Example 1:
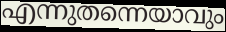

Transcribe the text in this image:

എന്നുതന്നെയാവും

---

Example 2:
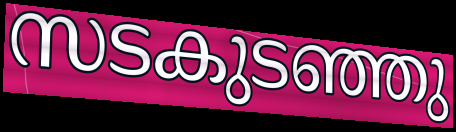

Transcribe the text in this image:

സടകുടഞ്ഞു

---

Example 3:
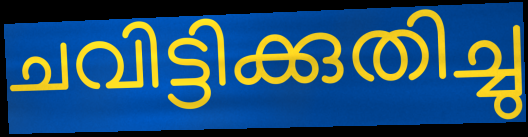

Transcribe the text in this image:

ചവിട്ടിക്കുതിച്ചു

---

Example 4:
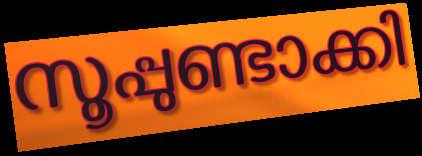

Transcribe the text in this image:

സൂപ്പുണ്ടാക്കി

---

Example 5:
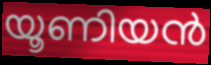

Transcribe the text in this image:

യൂണിയൻ